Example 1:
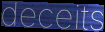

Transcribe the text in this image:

deceits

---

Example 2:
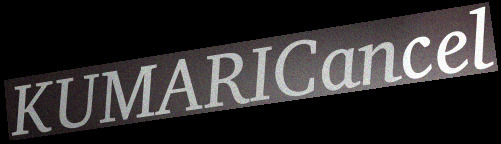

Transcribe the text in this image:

KUMARICancel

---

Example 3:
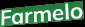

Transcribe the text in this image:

Farmelo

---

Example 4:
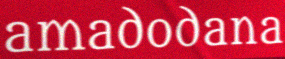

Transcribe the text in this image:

amadodana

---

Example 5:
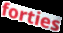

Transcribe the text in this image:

forties